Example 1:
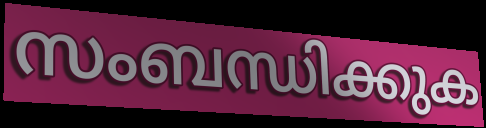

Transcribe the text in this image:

സംബന്ധിക്കുക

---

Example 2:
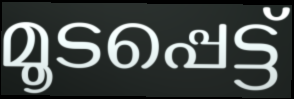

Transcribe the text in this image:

മൂടപ്പെട്ട്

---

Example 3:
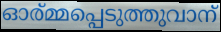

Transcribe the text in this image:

ഓര്മ്മപ്പെടുത്തുവാന്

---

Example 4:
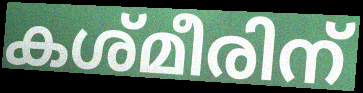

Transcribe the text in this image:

കശ്മീരിന്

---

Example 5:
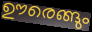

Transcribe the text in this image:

ഊരെങ്ങും